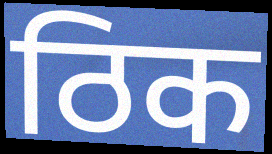
ठिक